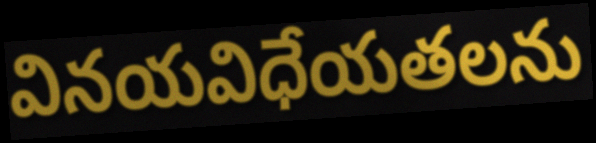
వినయవిధేయతలను